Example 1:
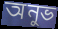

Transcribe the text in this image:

অনুভ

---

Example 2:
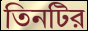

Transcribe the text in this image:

তিনটির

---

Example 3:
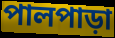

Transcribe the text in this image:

পালপাড়া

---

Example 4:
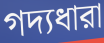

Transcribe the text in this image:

গদ্যধারা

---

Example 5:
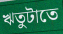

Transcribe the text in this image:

ঋতুটাতে